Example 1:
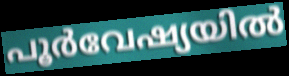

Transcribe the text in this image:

പൂർവേഷ്യയിൽ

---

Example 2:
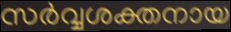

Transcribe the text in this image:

സർവ്വശക്തനായ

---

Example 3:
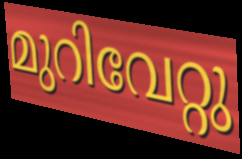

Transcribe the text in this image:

മുറിവേറ്റു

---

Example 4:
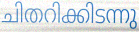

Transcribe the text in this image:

ചിതറിക്കിടന്നു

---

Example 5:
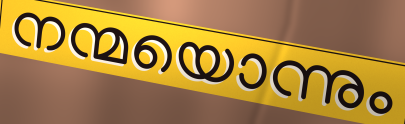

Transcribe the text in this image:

നന്മയൊന്നും